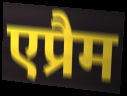
एप्रैम